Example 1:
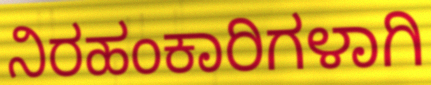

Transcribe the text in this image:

ನಿರಹಂಕಾರಿಗಳಾಗಿ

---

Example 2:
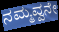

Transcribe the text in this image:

ನಮ್ಮವ್ವನೇ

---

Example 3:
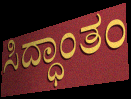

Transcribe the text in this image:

ಸಿದ್ಧಾಂತಂ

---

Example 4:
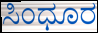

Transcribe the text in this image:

ಸಿಂಧೂರ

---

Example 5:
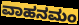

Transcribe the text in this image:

ವಾಹನಮಂ